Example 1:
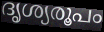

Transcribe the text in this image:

ദൃശ്യരൂപം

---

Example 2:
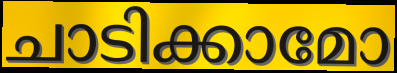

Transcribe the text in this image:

ചാടിക്കാമോ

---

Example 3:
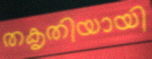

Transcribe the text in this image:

തകൃതിയായി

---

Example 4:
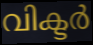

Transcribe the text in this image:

വിക്ടർ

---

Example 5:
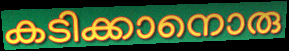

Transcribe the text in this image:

കടിക്കാനൊരു